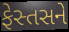
ફેસ્તસને